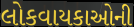
લોકવાયકાઓની